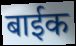
बाईक